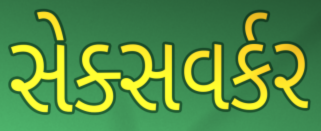
સેક્સવર્કર